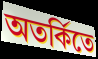
অতর্কিতে